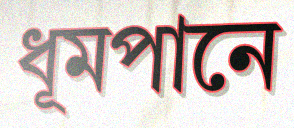
ধূমপানে